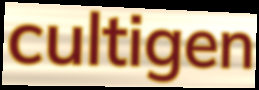
cultigen